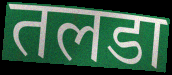
तलडा